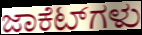
ಜಾಕೆಟ್‌ಗಳು